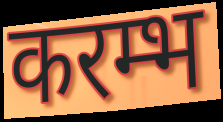
करम्भ